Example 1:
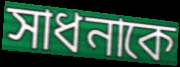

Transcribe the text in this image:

সাধনাকে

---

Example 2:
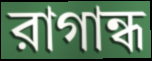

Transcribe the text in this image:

রাগান্ধ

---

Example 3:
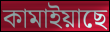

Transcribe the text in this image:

কামাইয়াছে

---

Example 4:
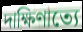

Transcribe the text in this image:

দাক্ষিণাত্যে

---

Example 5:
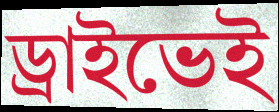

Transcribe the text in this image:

ড্রাইভেই